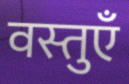
वस्‍तुएँ